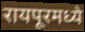
रायपूरमध्ये